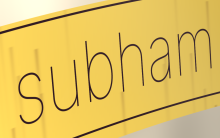
subham